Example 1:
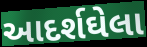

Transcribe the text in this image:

આદર્શઘેલા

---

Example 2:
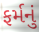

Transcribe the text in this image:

ફર્મનું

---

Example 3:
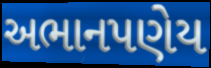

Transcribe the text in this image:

અભાનપણેય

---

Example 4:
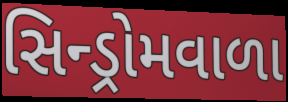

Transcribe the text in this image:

સિન્ડ્રોમવાળા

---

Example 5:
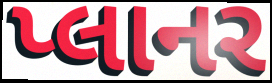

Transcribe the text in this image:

પ્લાનર